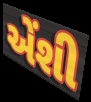
એંશી